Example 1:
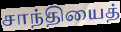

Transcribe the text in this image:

சாந்தியைத்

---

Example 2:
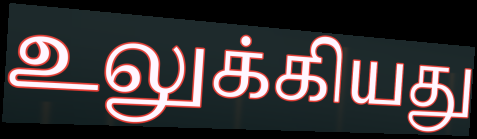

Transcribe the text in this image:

உலுக்கியது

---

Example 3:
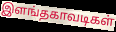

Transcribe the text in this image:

இளங்தகாவடிகள்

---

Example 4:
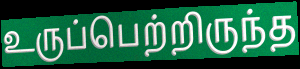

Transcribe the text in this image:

உருப்பெற்றிருந்த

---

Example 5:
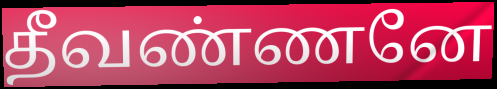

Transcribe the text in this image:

தீவண்ணனே